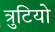
त्रुटियो